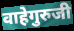
वाहेगुरुजी